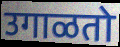
उगाळतो